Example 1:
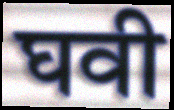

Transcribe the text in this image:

घवी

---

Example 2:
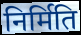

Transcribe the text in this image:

निर्मिति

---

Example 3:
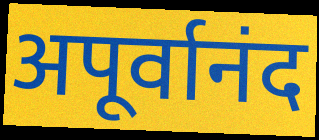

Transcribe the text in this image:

अपूर्वानंद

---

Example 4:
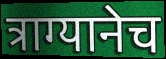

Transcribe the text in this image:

त्राग्यानेच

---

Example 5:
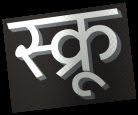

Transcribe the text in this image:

स्क्रू